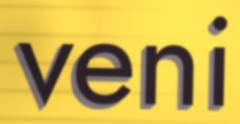
veni